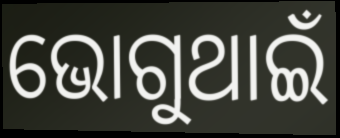
ଭୋଗୁଥାଇଁ